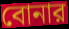
বোনার